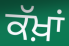
ਕੱਖ਼ਾਂ